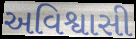
અવિશ્વાસી